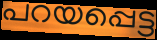
പറയപ്പെട്ട